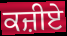
ਕਜ਼ੀਏ